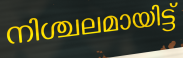
നിശ്ചലമായിട്ട്